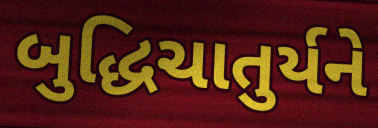
બુદ્ધિચાતુર્યને